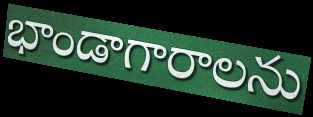
భాండాగారాలను